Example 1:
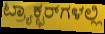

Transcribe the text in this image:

ಟ್ರ್ಯಾಕ್ಟರ್‌ಗಳಲ್ಲಿ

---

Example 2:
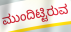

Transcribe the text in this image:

ಮುಂದಿಟ್ಟಿರುವ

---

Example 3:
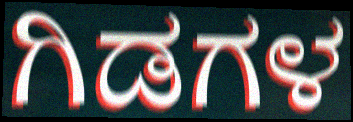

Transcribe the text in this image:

ಗಿಡಗಳ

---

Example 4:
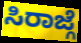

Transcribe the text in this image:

ಸಿರಾಜ್ಗೆ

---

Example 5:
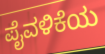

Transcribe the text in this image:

ಪೈವಳಿಕೆಯ